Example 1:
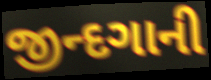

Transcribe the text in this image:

જીન્દગાની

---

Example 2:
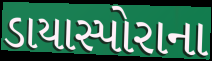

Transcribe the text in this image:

ડાયાસ્પોરાના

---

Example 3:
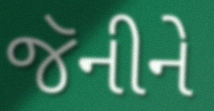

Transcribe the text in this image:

જૅનીને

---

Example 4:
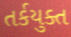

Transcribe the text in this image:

તર્કયુક્ત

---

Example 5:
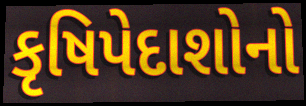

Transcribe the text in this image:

કૃષિપેદાશોનો